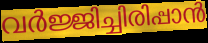
വർജ്ജിച്ചിരിപ്പാൻ